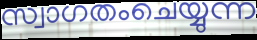
സ്വാഗതംചെയ്യുന്ന